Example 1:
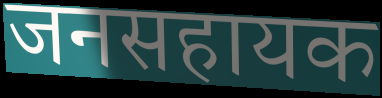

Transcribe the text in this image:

जनसहायक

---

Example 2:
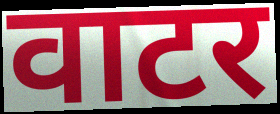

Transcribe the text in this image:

वाटर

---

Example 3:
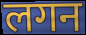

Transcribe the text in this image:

लगन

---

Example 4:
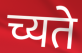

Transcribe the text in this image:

च्यते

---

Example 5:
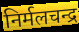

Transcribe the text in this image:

निर्मलचन्द्र